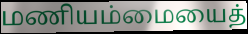
மணியம்மையைத்